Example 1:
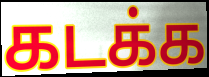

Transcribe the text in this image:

கடக்க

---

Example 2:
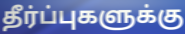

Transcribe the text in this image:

தீர்ப்புகளுக்கு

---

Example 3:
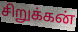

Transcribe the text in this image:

சிறுக்கன்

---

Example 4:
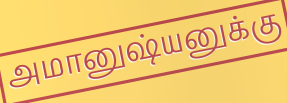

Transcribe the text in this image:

அமானுஷ்யனுக்கு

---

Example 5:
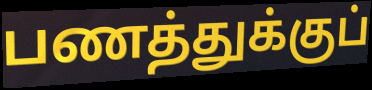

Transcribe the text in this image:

பணத்துக்குப்